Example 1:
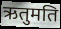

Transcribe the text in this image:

ऋतुमति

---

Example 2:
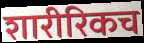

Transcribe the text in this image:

शारीरिकच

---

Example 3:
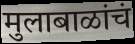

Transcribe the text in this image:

मुलाबाळांचं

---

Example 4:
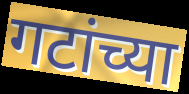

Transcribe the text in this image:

गटांच्या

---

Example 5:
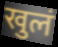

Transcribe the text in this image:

खुलं